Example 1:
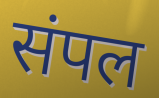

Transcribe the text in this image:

संपल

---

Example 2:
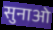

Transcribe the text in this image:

सुनाओ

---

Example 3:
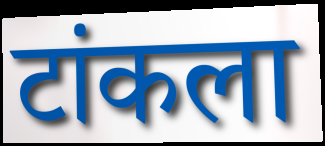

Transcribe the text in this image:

टांकला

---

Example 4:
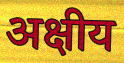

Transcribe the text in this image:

अक्षीय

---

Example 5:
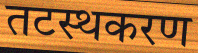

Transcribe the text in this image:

तटस्थकरण